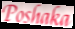
Poshaka